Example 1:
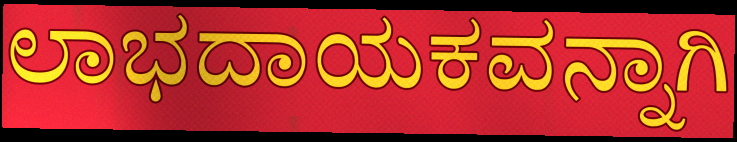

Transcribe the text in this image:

ಲಾಭದಾಯಕವನ್ನಾಗಿ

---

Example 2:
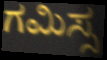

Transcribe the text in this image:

ಗಮಿಸ್ಸ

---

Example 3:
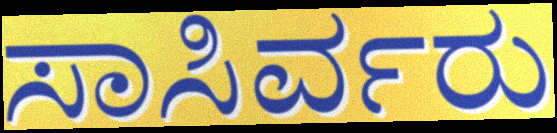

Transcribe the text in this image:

ಸಾಸಿರ್ವರು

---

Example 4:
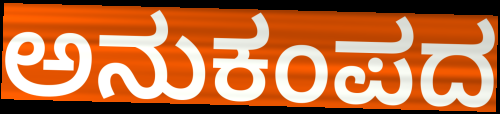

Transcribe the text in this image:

ಅನುಕಂಪದ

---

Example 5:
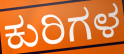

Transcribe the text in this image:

ಕುರಿಗಳ